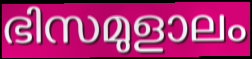
ഭിസമുളാലം